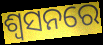
ଶ୍ଵସନରେ